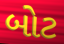
બોટ